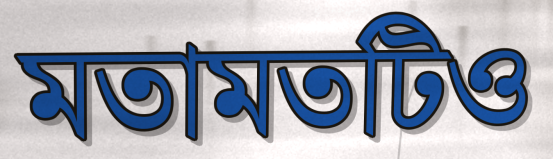
মতামতটিও